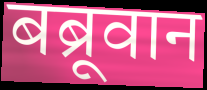
बब्रूवान